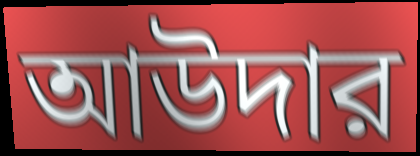
আউদার